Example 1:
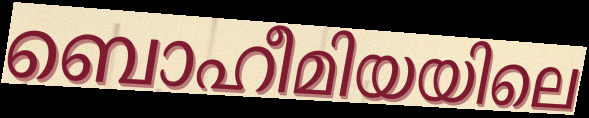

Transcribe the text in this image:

ബൊഹീമിയയിലെ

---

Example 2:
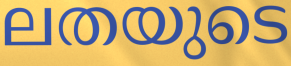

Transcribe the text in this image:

ലതയുടെ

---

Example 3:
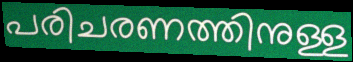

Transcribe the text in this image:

പരിചരണത്തിനുള്ള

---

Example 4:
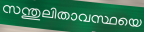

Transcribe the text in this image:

സന്തുലിതാവസ്ഥയെ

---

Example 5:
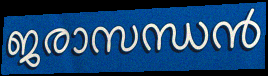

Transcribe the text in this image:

ജരാസന്ധൻ